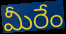
మీరేం